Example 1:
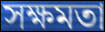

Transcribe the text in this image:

সক্ষমতা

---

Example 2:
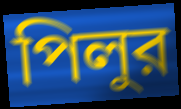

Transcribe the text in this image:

পিলুর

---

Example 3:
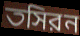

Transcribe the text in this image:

তসিরন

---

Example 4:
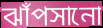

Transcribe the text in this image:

ঝাঁপসানো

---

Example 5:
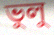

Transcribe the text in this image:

ভুলু